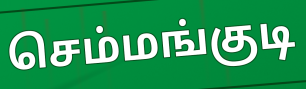
செம்மங்குடி